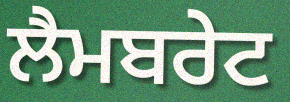
ਲੈਮਬਰੇਟ